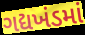
ગદ્યખંડમાં